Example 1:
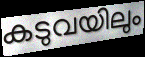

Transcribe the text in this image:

കടുവയിലും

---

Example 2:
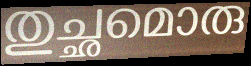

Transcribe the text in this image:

തുച്ഛമൊരു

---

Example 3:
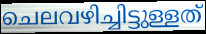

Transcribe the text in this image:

ചെലവഴിച്ചിട്ടുള്ളത്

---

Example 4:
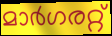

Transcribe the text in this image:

മാർഗരറ്റ്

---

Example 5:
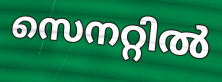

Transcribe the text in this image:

സെനറ്റിൽ